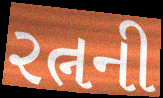
રત્નની